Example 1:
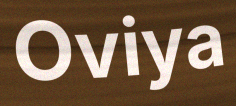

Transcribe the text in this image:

Oviya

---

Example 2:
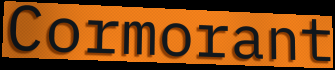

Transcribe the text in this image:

Cormorant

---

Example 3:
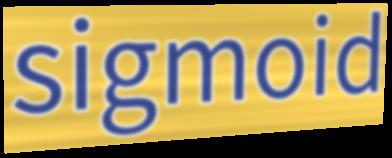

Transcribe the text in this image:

sigmoid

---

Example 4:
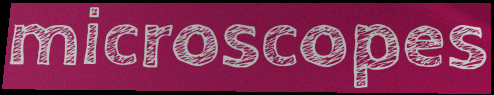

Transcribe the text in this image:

microscopes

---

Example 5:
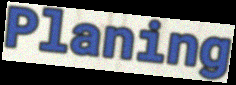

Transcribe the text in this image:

Planing